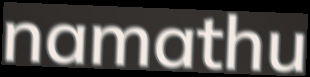
namathu